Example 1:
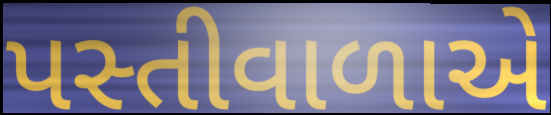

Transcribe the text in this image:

પસ્તીવાળાએ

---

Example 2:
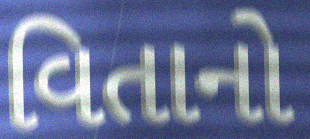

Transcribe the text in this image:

વિતાનો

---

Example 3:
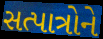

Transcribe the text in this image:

સત્પાત્રોને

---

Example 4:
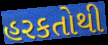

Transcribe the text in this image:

હરકતોથી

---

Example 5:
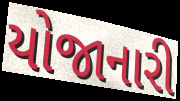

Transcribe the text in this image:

યોજાનારી